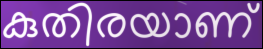
കുതിരയാണ്